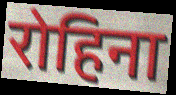
रोहिना